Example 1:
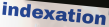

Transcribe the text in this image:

indexation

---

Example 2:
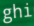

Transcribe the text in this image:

ghi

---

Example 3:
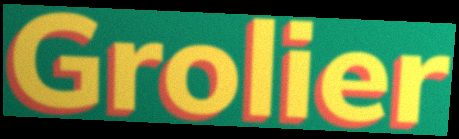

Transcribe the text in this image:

Grolier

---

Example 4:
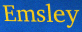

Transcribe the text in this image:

Emsley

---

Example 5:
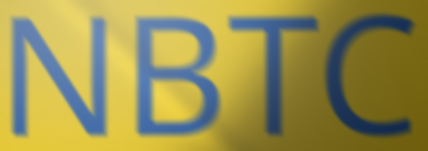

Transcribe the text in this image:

NBTC